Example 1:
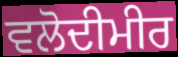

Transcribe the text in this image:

ਵਲੋਦੀਮੀਰ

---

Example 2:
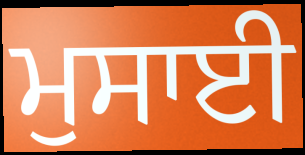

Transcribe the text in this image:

ਮੁਸਾਈ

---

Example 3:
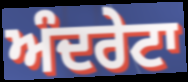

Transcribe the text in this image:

ਅੰਦਰੇਟਾ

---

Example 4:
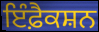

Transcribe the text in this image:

ਇੰਫ਼ੈਕਸ਼ਨ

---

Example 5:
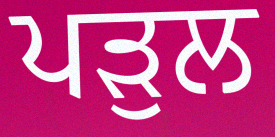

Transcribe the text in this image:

ਪੜੁਲ